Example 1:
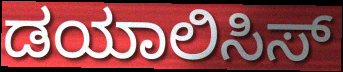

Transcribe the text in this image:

ಡಯಾಲಿಸಿಸ್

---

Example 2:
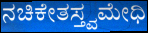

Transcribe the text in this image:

ನಚಿಕೇತಸ್ತ್ವಮೇಧಿ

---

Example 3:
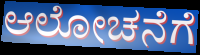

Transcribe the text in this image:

ಆಲೋಚನೆಗೆ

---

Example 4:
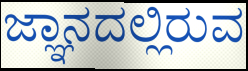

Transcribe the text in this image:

ಜ್ಞಾನದಲ್ಲಿರುವ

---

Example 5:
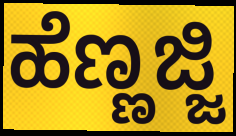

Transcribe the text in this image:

ಹೆಣ್ಣಜ್ಜಿ